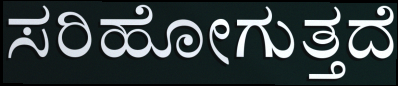
ಸರಿಹೋಗುತ್ತದೆ